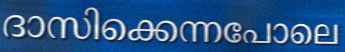
ദാസിക്കെന്നപോലെ